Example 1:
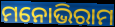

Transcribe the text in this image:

ମନୋଭିରାମ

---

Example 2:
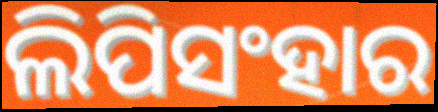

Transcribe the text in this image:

ଲିପିସଂହାର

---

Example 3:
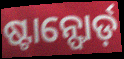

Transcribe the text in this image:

ଷ୍ଟାନ୍ଫୋର୍ଡ଼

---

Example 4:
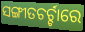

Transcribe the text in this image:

ସଙ୍ଗୀତଚର୍ଚ୍ଚାରେ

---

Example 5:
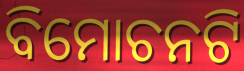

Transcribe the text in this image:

ବିମୋଚନଟି